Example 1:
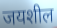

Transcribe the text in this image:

जयशील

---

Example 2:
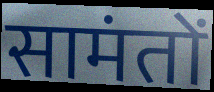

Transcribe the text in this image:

सामंतों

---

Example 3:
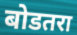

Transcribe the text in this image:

बोडतरा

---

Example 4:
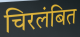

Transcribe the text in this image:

चिरलंबित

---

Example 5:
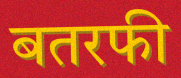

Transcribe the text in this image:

बतरफी